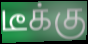
டீக்கு